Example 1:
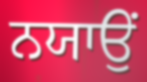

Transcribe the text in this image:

ਨਯਾਉਂ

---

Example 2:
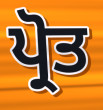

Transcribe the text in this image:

ਪ੍ਰੋਤ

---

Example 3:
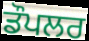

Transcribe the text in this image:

ਡੌਪਲਰ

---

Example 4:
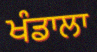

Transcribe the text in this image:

ਖੰਡਾਲਾ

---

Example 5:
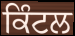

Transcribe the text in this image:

ਕਿੰਟਲ